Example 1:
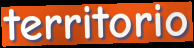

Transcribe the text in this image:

territorio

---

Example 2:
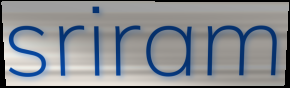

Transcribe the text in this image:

sriram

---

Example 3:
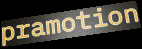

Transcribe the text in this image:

pramotion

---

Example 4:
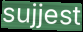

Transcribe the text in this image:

sujjest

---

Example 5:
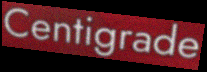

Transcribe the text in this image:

Centigrade